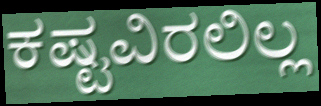
ಕಷ್ಟವಿರಲಿಲ್ಲ